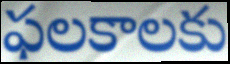
ఫలకాలకు